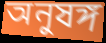
অনুষঙ্গ